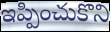
ఇప్పించుకొని